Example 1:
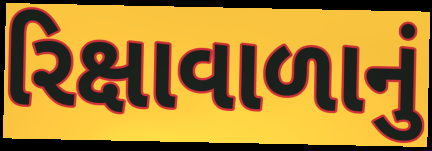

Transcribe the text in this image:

રિક્ષાવાળાનું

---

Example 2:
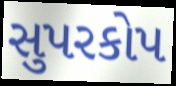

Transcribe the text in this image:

સુપરકોપ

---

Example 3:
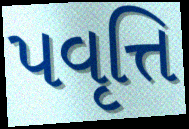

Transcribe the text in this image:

પવૃત્તિ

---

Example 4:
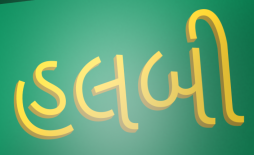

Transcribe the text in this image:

હલબી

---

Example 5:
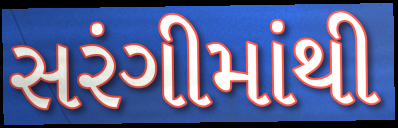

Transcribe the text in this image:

સરંગીમાંથી